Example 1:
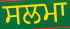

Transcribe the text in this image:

ਸਲਮਾ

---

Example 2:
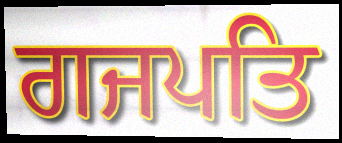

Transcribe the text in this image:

ਗਜਪਤਿ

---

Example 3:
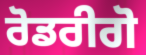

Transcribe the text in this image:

ਰੋਡਰੀਗੋ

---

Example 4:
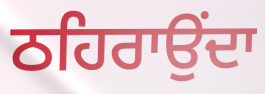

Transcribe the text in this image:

ਠਹਿਰਾਉਂਦਾ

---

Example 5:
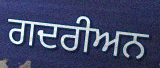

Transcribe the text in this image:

ਗਦਰੀਅਨ